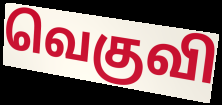
வெகுவி